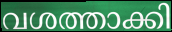
വശത്താക്കി